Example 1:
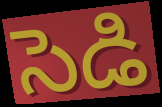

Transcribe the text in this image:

సెడి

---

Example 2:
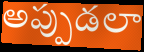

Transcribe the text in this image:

అప్పుడలా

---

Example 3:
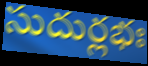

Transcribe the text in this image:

సుదుర్లభః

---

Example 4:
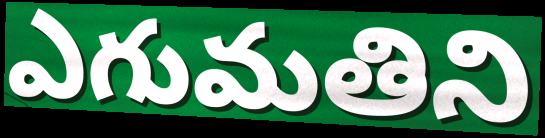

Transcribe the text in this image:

ఎగుమతిని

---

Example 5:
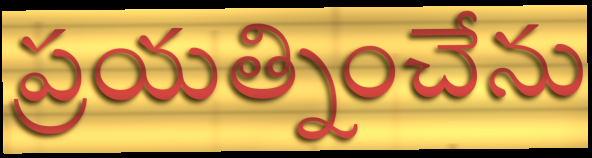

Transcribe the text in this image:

ప్రయత్నించేను